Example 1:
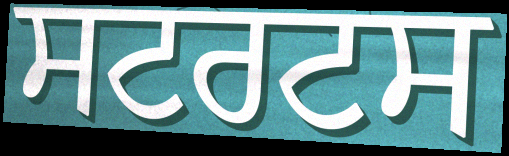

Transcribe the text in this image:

ਸਟਰਟਸ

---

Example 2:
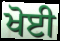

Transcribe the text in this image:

ਖੋਈ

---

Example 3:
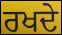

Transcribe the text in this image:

ਰਖਦੇ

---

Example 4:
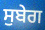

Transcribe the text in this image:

ਸੁਬੇਗ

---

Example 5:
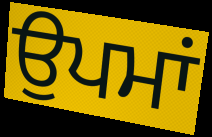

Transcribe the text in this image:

ਉਪਮਾਂ